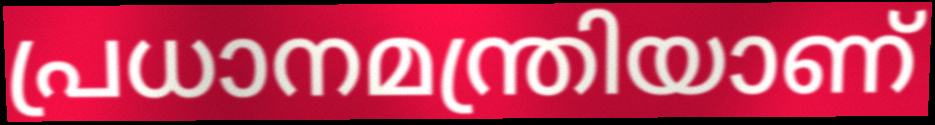
പ്രധാനമന്ത്രിയാണ്